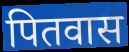
पितवास